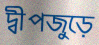
দ্বীপজুড়ে